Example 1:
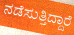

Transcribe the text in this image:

ನಡೆಸುತ್ತಿದ್ದಾರೆ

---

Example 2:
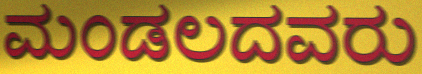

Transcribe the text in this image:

ಮಂಡಲದವರು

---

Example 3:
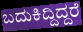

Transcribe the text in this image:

ಬದುಕಿದ್ದಿದ್ದರೆ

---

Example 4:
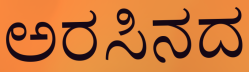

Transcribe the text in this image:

ಅರಸಿನದ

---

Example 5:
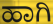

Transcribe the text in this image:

ಹಾಗಿ